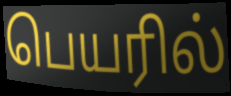
பெயரில்